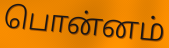
பொன்னம்